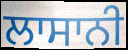
ਲਾਸਾਨੀ